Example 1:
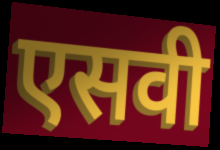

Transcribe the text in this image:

एसवी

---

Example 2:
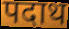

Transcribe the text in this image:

पदाथ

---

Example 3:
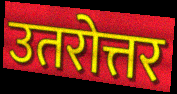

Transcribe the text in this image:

उतरोत्तर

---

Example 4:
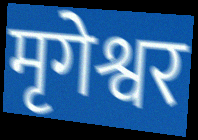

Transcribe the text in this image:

मृगेश्वर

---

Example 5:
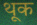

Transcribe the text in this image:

थूक